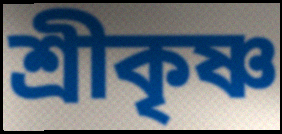
শ্রীকৃষ্ণ